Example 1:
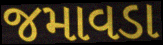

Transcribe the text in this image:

જમાવડા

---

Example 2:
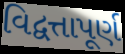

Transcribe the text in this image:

વિદ્વત્તાપૂર્ણ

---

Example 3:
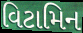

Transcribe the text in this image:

વિટામિન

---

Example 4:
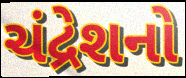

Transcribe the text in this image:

ચંદ્રેશનો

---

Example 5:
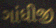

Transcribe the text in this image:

ગાંધીજી